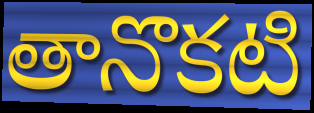
తానొకటి